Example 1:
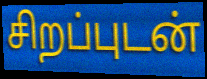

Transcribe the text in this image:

சிறப்புடன்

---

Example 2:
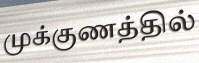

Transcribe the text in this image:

முக்குணத்தில்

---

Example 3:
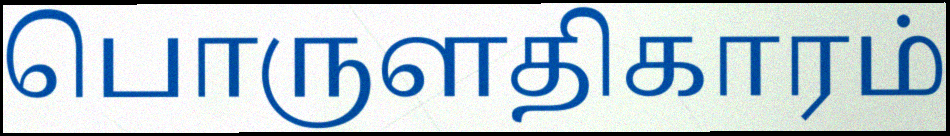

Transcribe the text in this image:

பொருளதிகாரம்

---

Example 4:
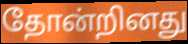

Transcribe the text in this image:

தோன்றினது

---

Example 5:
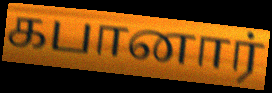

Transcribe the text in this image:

கபானார்